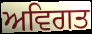
ਅਵਿਗਤ